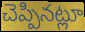
చెప్పినట్లూ